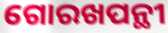
ଗୋରଖପନ୍ଥୀ